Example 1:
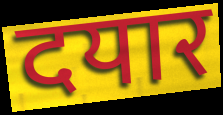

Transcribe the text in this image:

दयार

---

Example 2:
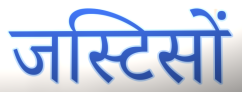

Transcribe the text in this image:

जस्टिसों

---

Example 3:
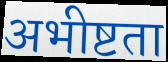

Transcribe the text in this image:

अभीष्टता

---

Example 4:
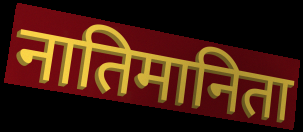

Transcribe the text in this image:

नातिमानिता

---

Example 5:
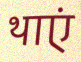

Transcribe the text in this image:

थाएं